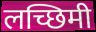
लच्छिमी